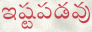
ఇష్టపడవు